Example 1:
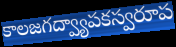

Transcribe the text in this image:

కాలజగద్వ్యాపకస్వరూప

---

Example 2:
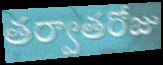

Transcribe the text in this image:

తర్వాతరోజు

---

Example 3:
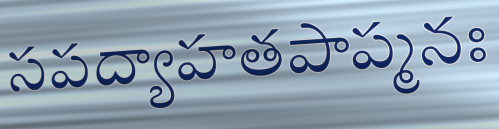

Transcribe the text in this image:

సపద్యాహతపాప్మనః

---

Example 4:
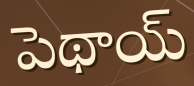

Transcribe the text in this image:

పెథాయ్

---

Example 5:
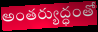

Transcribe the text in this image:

అంతర్యుద్ధంతో